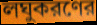
লঘুকরণের